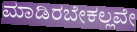
ಮಾಡಿರಬೇಕಲ್ಲವೇ